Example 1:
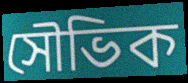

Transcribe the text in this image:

সৌভিক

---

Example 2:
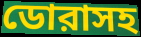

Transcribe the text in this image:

ডোরাসহ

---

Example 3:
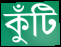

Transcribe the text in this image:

কুঁটি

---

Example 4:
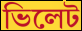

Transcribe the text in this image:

ভিলেট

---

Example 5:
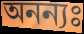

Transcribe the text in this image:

অনন্যঃ